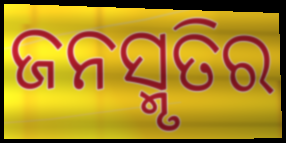
ଜନସ୍ମୃତିର